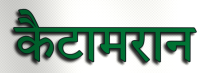
कैटामरान